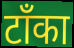
टाँका